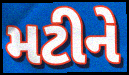
મટીને